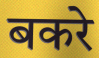
बकरे